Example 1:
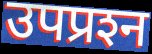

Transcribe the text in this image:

उपप्रश्‍न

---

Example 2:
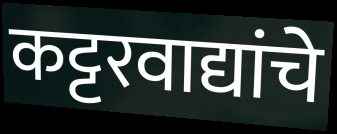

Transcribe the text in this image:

कट्टरवाद्यांचे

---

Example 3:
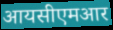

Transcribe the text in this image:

आयसीएमआर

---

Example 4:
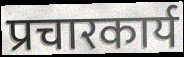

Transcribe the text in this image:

प्रचारकार्य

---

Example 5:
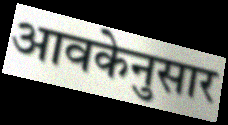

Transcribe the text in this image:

आवकेनुसार